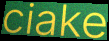
ciake